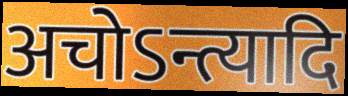
अचोऽन्त्यादि